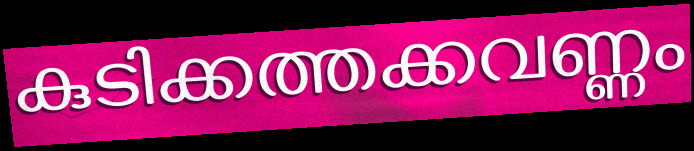
കുടിക്കത്തക്കവണ്ണം